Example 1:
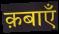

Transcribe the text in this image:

क़बाएँ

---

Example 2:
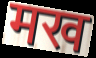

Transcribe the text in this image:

मख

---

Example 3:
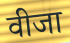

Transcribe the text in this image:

वीजा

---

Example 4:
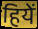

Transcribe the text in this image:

हियें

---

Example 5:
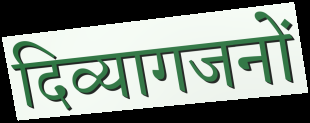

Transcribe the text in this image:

दिव्यागजनों